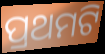
ପ୍ରଥମଟି